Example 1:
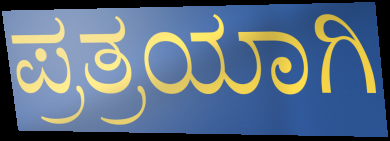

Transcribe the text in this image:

ಪ್ರತ್ರಯಾಗಿ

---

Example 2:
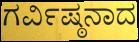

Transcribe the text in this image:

ಗರ್ವಿಷ್ಠನಾದ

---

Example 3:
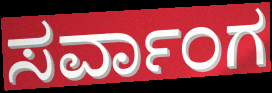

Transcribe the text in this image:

ಸರ್ವಾಂಗ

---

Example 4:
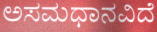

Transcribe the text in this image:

ಅಸಮಧಾನವಿದೆ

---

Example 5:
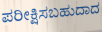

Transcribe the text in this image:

ಪರೀಕ್ಷಿಸಬಹುದಾದ